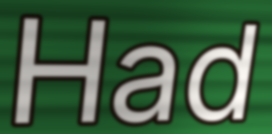
Had